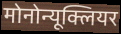
मोनोन्यूक्लियर